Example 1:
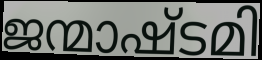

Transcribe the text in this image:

ജന്മാഷ്ടമി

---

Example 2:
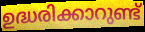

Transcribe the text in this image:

ഉദ്ധരിക്കാറുണ്ട്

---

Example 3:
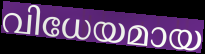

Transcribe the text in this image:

വിധേയമായ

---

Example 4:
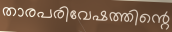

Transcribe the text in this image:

താരപരിവേഷത്തിന്റെ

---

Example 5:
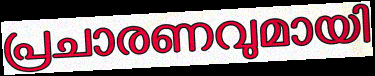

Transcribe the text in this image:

പ്രചാരണവുമായി